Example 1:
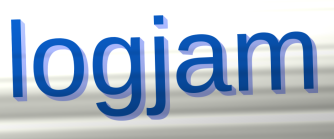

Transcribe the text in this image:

logjam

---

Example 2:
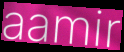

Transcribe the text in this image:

aamir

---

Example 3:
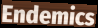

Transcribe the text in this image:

Endemics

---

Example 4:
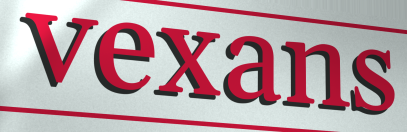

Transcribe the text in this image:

vexans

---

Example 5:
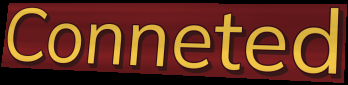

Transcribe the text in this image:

Conneted